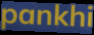
pankhi